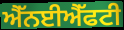
ਐੱਨਈਐੱਫਟੀ